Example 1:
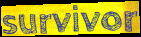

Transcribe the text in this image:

survivor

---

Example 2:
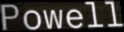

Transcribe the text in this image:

Powell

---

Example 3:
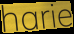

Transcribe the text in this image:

harie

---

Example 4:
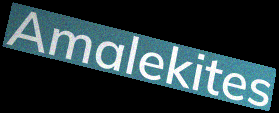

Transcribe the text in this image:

Amalekites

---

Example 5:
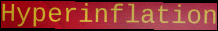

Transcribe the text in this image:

Hyperinflation